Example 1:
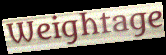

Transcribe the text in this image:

Weightage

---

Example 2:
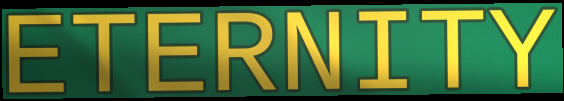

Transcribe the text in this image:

ETERNITY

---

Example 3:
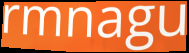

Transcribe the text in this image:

rmnagu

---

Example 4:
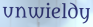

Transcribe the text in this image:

unwieldy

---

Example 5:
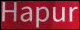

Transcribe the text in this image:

Hapur